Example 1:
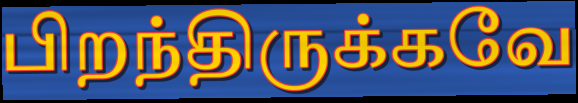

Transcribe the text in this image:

பிறந்திருக்கவே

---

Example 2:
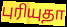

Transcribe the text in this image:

புரியுதா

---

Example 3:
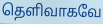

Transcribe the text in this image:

தெளிவாகவே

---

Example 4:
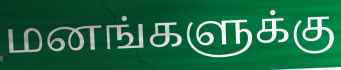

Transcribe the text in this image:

மனங்களுக்கு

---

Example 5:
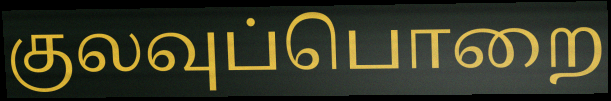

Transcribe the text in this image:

குலவுப்பொறை